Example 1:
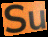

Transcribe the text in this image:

Su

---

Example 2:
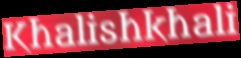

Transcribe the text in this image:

Khalishkhali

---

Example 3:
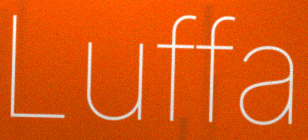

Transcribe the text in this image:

Luffa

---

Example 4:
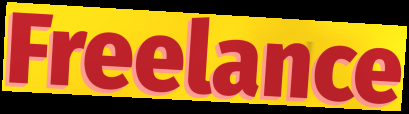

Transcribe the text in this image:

Freelance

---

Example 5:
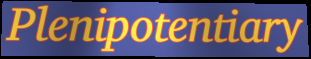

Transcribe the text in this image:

Plenipotentiary